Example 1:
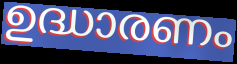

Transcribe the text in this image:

ഉദ്ധാരണം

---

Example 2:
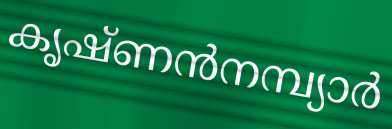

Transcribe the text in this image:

കൃഷ്ണൻനമ്പ്യാർ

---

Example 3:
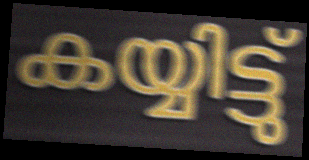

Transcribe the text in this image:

കയ്യിട്ടു്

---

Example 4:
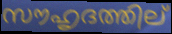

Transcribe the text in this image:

സൗഹൃദത്തില്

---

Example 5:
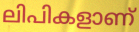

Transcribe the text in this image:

ലിപികളാണ്